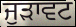
ਜੁੜਾਵਟ